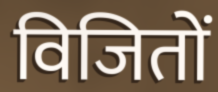
विजितों